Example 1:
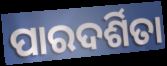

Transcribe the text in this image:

ପାରଦର୍ଶିତା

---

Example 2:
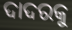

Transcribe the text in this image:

ଦାଦରକୁ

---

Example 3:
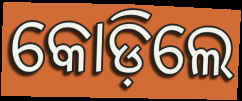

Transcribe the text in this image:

କୋଡ଼ିଲେ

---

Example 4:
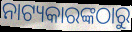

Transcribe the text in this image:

ନାଟ୍ୟକାରଙ୍କଠାରୁ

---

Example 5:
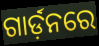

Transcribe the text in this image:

ଗାର୍ଡ଼ନରେ